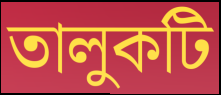
তালুকটি